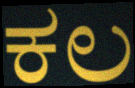
ಕಲ